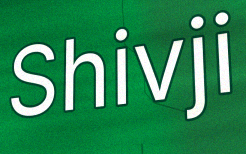
Shivji